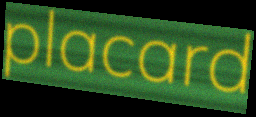
placard